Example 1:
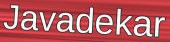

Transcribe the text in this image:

Javadekar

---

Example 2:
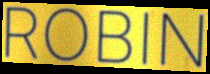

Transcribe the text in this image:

ROBIN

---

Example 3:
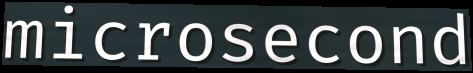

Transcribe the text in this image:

microsecond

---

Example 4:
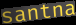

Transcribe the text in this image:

santna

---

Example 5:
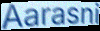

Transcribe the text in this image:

Aarasni